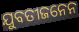
ଯୁବତୀଜନେନ